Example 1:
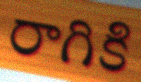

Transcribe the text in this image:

రాగికి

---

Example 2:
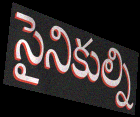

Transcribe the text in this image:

సైనికుల్ని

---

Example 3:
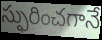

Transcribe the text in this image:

స్ఫురించగానే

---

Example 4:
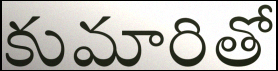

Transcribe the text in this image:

కుమారితో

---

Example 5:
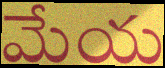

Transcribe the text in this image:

మేయ